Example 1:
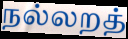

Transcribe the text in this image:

நல்லறத்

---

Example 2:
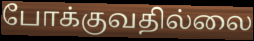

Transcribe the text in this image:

போக்குவதில்லை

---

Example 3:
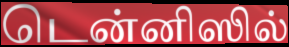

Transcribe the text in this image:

டென்னிஸில்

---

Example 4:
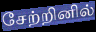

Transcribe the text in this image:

சேற்றினில்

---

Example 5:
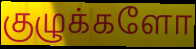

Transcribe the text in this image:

குழுக்களோ